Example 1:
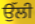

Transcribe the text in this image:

ਉੱਲੀ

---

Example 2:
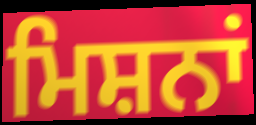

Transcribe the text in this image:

ਮਿਸ਼ਨਾਂ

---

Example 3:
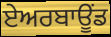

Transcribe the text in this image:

ਏਅਰਬਾਊਂਡ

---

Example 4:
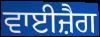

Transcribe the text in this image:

ਵਾਈਜ਼ੈਗ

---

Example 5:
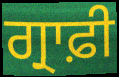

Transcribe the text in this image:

ਗ੍ਰਾਫ਼ੀ